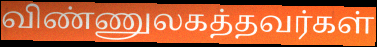
விண்ணுலகத்தவர்கள்